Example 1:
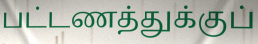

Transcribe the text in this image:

பட்டணத்துக்குப்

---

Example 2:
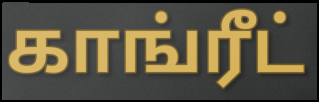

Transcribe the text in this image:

காங்ரீட்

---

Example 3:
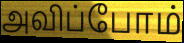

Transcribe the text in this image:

அவிப்போம்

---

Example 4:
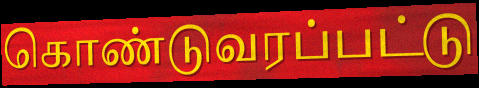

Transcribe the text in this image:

கொண்டுவரப்பட்டு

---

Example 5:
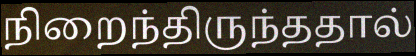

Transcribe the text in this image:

நிறைந்திருந்ததால்